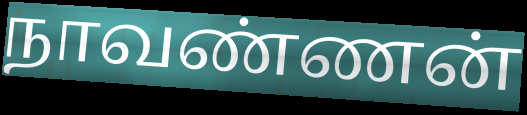
நாவண்ணன்